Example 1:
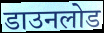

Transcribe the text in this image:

डाउनलोड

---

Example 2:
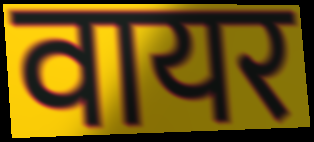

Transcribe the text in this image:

वायर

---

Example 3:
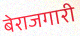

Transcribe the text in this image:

बेराजगारी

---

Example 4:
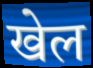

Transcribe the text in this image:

खेल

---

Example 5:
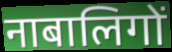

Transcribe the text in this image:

नाबालिगों